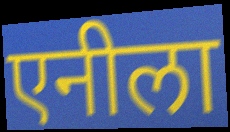
एनीला